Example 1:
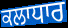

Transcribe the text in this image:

ਕਲਾਧਾਰ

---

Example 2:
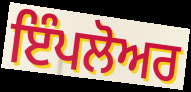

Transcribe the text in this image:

ਇੰਪਲੋਅਰ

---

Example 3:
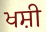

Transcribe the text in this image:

ਖਸ਼ੀ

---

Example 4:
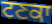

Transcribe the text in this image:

ਟਣਕਾ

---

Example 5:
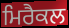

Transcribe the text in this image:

ਮਿਰੈਕਲ